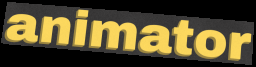
animator